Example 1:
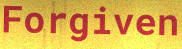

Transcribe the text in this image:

Forgiven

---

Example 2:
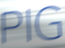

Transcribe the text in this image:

PIG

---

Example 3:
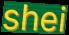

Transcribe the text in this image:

shei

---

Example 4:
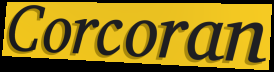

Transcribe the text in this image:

Corcoran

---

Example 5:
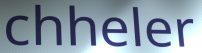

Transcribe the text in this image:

chheler